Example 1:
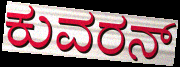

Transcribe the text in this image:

ಕುವರನ್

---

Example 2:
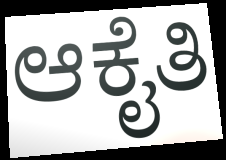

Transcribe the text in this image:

ಆಕೈತಿ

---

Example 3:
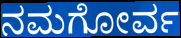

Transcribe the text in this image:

ನಮಗೋರ್ವ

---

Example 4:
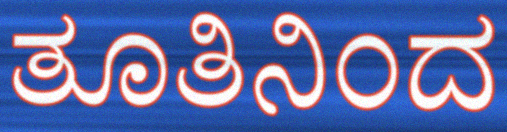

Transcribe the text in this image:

ತೂತಿನಿಂದ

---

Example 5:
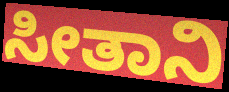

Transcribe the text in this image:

ಸೀತಾನಿ